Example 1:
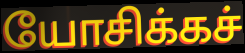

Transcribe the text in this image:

யோசிக்கச்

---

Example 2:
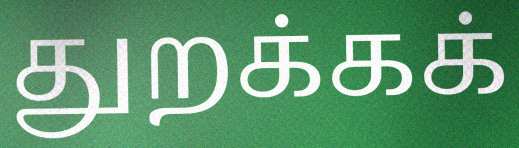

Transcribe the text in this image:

துறக்கக்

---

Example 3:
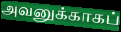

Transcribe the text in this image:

அவனுக்காகப்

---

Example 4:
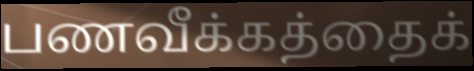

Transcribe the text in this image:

பணவீக்கத்தைக்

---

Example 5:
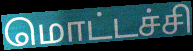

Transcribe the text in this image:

மொட்டச்சி